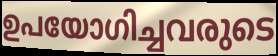
ഉപയോഗിച്ചവരുടെ